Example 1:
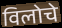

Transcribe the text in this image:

विलोचे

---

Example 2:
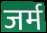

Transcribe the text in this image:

जर्म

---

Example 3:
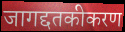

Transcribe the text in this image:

जागद्दतकीकरण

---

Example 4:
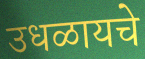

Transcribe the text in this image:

उधळायचे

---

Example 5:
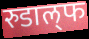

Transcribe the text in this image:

रुडाल्फ